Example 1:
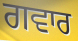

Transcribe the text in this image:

ਗਵਾਰ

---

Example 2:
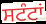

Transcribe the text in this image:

ਸਟੰਟਾਂ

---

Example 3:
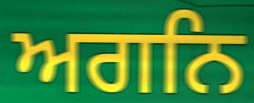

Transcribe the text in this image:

ਅਗਨਿ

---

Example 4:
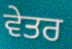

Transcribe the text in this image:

ਵੇਤਰ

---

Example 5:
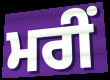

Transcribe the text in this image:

ਮਰੀਂ